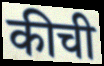
कीची